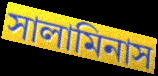
সালামিনাস